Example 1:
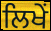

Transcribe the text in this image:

ਲਿਖੇਂ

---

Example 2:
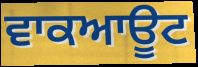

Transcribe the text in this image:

ਵਾਕਆਊਟ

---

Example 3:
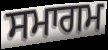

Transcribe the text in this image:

ਸਮਾਗਮ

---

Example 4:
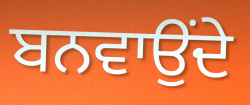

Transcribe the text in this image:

ਬਨਵਾਉਂਦੇ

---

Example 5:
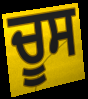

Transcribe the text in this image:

ਚੂਸ